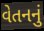
વેતનનું